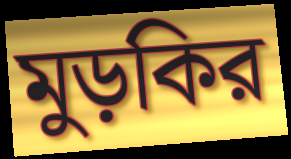
মুড়কির